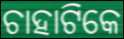
ଚାହାଟିକେ